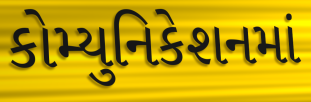
કોમ્યુનિકેશનમાં